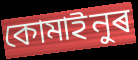
কোমাইনুৰ